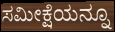
ಸಮೀಕ್ಷೆಯನ್ನೂ